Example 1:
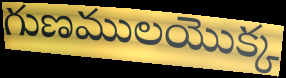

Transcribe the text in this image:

గుణములయొక్క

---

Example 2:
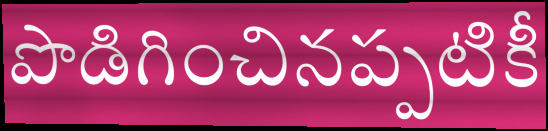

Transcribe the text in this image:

పొడిగించినప్పటికీ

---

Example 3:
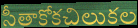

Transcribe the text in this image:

సీతాకోకచిలుకల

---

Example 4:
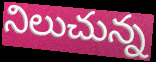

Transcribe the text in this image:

నిలుచున్న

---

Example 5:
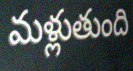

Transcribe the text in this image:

మళ్లుతుంది